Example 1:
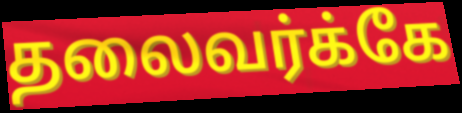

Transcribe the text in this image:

தலைவர்க்கே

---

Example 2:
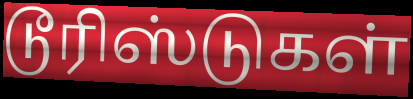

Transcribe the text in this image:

டூரிஸ்டுகள்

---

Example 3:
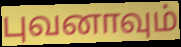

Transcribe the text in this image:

புவனாவும்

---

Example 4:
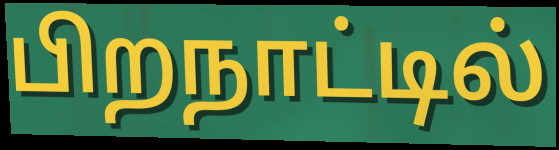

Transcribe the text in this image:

பிறநாட்டில்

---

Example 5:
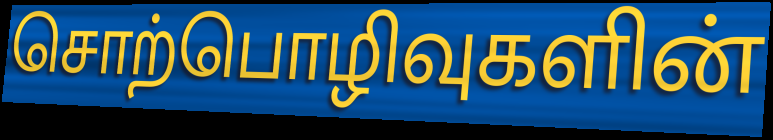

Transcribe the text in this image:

சொற்பொழிவுகளின்